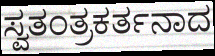
ಸ್ವತಂತ್ರಕರ್ತನಾದ